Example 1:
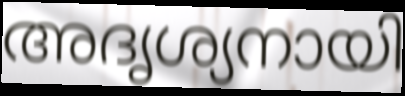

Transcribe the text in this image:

അദൃശ്യനായി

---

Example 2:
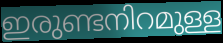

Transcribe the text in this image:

ഇരുണ്ടനിറമുള്ള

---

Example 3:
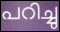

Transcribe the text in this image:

പറിച്ചു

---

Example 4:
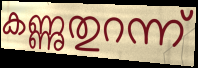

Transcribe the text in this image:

കണ്ണുതുറന്ന്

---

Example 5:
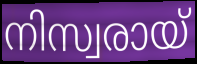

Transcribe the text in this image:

നിസ്വരായ്